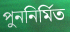
পুননির্মিত